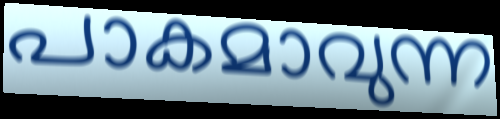
പാകമാവുന്ന